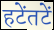
हटेंतटें